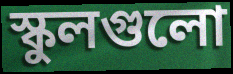
স্কুলগুলো